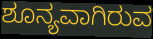
ಶೂನ್ಯವಾಗಿರುವ